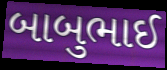
બાબુભાઈ